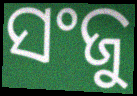
ସଂଜୁ